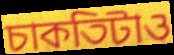
চাকতিটাও